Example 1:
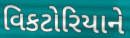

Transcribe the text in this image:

વિકટોરિયાને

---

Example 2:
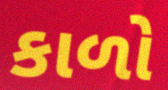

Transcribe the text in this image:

કાળો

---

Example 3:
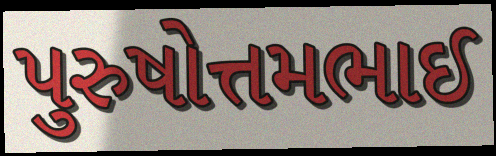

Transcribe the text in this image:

પુરુષોત્તમભાઈ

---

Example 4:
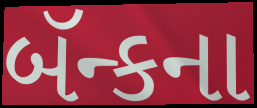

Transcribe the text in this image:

બૅન્કના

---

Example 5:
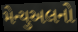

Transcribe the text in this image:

મેન્યુઅલનો